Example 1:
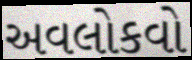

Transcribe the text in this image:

અવલોકવો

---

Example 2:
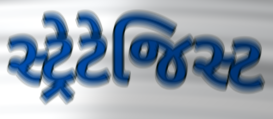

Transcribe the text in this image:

સ્ટ્રેટેજિસ્ટ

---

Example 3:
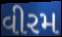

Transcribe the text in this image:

વીરમ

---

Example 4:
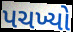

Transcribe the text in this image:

પચખ્યો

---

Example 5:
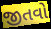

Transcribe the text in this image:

જીતવો